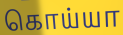
கொய்யா